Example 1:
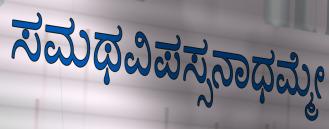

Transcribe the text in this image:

ಸಮಥವಿಪಸ್ಸನಾಧಮ್ಮೇ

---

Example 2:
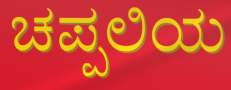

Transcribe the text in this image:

ಚಪ್ಪಲಿಯ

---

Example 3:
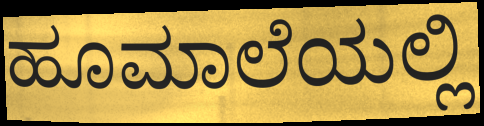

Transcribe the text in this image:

ಹೂಮಾಲೆಯಲ್ಲಿ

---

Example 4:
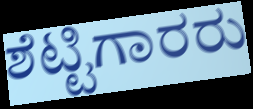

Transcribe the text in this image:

ಶೆಟ್ಟಿಗಾರರು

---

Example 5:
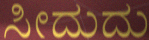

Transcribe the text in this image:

ಸೀದುದು